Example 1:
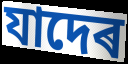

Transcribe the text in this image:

যাদেৰ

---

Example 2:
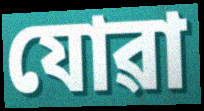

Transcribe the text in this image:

যোৱা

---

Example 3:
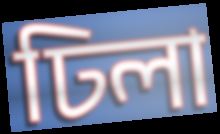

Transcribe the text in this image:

ঢিলা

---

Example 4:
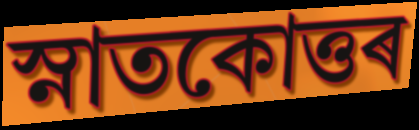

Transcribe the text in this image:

স্নাতকোত্তৰ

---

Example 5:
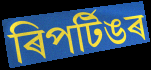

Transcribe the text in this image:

ৰিপৰ্টিঙৰ